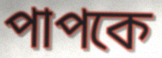
পাপকে